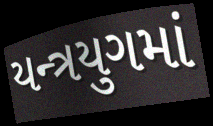
યન્ત્રયુગમાં